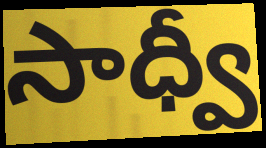
సాధ్వీ